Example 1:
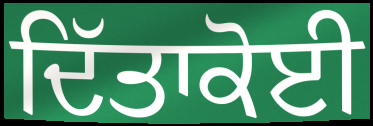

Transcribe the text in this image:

ਦਿੱਤਾਕੋਈ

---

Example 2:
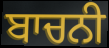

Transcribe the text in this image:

ਬਾਚਨੀ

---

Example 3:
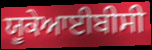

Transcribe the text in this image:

ਯੂਕੇਆਈਬੀਸੀ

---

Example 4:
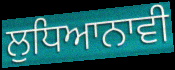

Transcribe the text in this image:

ਲੁਧਿਆਨਾਵੀ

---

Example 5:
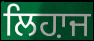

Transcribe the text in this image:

ਲਿਹ਼ਾਜ